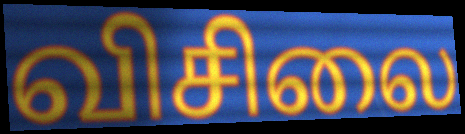
விசிலை